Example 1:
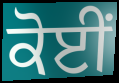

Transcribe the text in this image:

ਕੋਈਂ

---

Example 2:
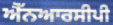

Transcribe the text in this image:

ਐੱਨਆਰਸੀਪੀ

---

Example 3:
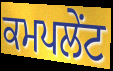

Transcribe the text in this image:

ਕਮਪਲੇਂਟ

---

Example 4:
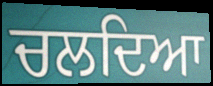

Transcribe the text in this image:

ਚਲਦਿਆ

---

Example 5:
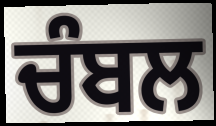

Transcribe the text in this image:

ਚੰਬਲ